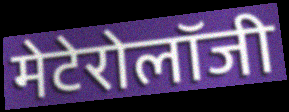
मेटेरोलॉजी